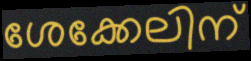
ശേക്കേലിന്